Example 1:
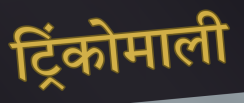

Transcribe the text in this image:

ट्रिंकोमाली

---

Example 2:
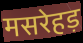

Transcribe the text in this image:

मसरेहड़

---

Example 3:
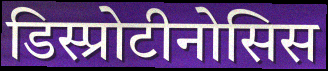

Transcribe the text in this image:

डिस्प्रोटीनोसिस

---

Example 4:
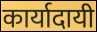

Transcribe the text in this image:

कार्यादायी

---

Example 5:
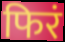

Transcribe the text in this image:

फिरं